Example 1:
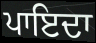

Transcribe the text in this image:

ਪਾਇਦਾ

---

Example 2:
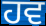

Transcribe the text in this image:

ਹਵ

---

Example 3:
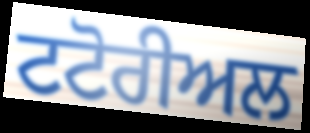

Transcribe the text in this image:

ਟਟੋਰੀਅਲ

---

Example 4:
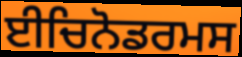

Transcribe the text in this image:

ਈਚਿਨੋਡਰਮਸ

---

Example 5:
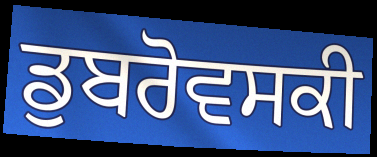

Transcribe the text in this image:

ਡੁਬਰੋਵਸਕੀ